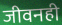
जीवनही